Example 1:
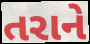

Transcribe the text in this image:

તરાને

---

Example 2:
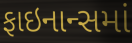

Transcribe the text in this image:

ફાઇનાન્સમાં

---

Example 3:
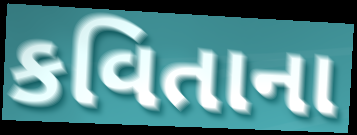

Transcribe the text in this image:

કવિતાના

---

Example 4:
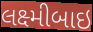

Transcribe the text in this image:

લક્ષ્મીબાઇ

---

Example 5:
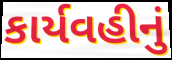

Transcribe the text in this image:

કાર્યવહીનું